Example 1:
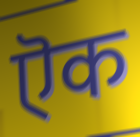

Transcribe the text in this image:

ऎक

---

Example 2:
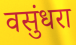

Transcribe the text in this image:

वसुंधरा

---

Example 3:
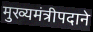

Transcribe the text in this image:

मुख्यमंत्रीपदाने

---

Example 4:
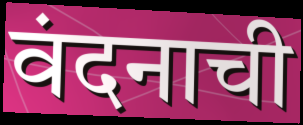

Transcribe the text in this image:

वंदनाची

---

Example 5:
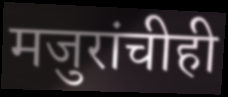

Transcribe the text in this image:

मजुरांचीही